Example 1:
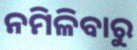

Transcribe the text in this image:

ନମିଳିବାରୁ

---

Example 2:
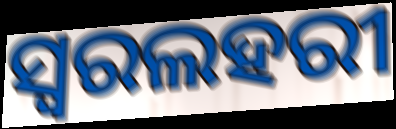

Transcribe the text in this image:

ସ୍ୱରଲହରୀ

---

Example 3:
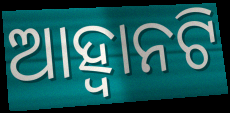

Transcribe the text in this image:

ଆହ୍ଵାନଟି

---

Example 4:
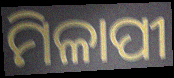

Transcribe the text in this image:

ମିଳାପୀ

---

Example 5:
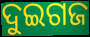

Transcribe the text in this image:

ଦୁଇଗଜ